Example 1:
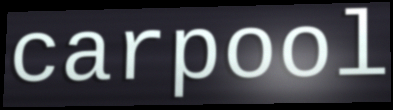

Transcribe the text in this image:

carpool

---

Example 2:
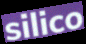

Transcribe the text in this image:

silico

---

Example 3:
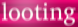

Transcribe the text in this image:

looting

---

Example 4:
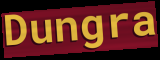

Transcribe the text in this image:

Dungra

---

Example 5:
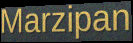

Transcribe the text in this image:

Marzipan